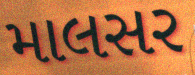
માલસર